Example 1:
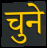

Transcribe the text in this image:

चुने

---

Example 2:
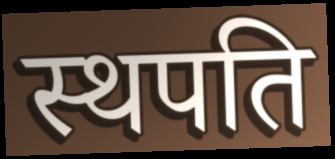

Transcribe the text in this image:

स्थपति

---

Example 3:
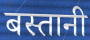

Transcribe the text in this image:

बस्तानी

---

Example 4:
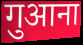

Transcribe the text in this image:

गुआना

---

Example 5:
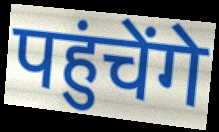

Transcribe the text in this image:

पहुंचेंगे